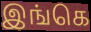
இங்கெ